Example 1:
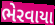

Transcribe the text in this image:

ભેરવાયા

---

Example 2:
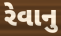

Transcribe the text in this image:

રેવાનુ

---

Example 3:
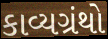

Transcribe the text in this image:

કાવ્યગ્રંથો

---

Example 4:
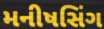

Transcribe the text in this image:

મનીષસિંગ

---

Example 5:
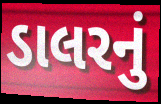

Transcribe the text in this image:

ડાલરનું